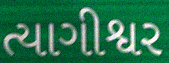
ત્યાગીશ્વર